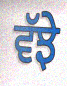
ਵੱਝੇ